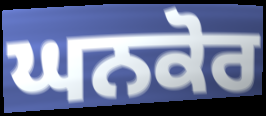
ਘਨਕੋਰ